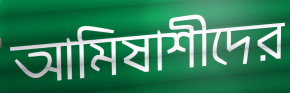
আমিষাশীদের